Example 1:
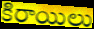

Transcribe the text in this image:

కిరాయిలు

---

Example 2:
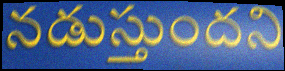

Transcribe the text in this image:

నడుస్తుందని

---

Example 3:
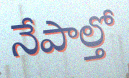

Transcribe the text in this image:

నేపాల్తో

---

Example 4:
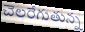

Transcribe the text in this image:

చెలరేగుతున్న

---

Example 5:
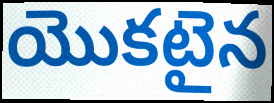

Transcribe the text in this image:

యొకటైన